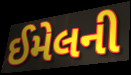
ઈમેલની